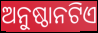
ଅନୁଷ୍ଠାନଟିଏ